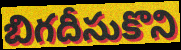
బిగదీసుకొని